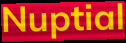
Nuptial